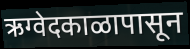
ऋग्वेदकाळापासून